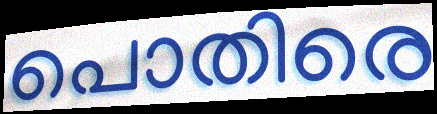
പൊതിരെ